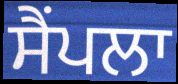
ਸੈਂਪਲਾ